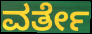
ವರ್ತೇ